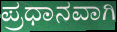
ಪ್ರಧಾನವಾಗಿ